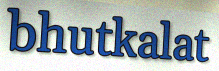
bhutkalat